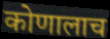
कोणालाच